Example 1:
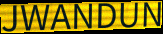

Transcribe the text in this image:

JWANDUN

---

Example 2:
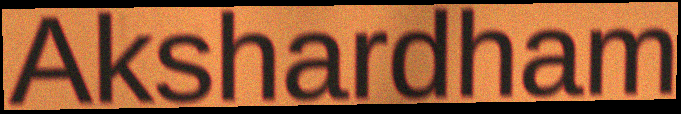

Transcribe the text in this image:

Akshardham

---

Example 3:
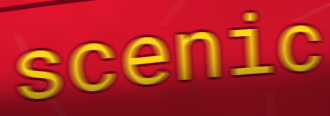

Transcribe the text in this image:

scenic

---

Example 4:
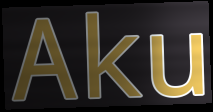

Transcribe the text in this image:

Aku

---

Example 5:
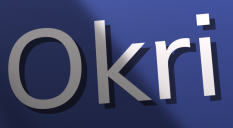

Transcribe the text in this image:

Okri